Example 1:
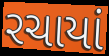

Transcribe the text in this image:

રચાયાં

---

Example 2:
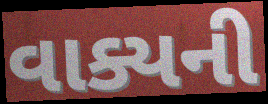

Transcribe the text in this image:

વાક્યની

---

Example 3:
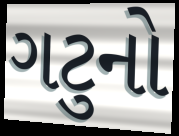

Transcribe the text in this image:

ગટુનો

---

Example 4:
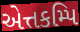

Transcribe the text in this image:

એત્તકમ્પિ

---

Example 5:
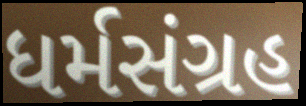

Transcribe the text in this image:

ધર્મસંગ્રહ